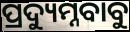
ପ୍ରଦ୍ୟୁମ୍ନବାବୁ